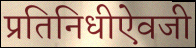
प्रतिनिधीऐवजी